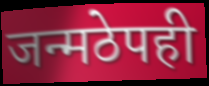
जन्मठेपही